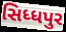
સિધ્ધપુર